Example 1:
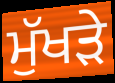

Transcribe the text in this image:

ਮੁੱਖੜੇ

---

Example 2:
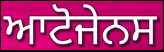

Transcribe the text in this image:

ਆਟੋਜੇਨਸ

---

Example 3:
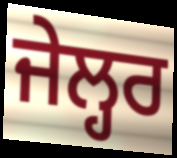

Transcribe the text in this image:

ਜੇਲ੍ਹਰ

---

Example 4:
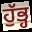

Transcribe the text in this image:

ਹੁੱਭ੍ਹ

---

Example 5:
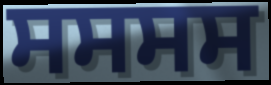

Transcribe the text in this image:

ਸਸਸਸ